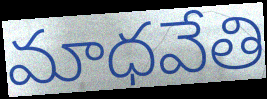
మాధవేతి